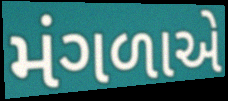
મંગળાએ